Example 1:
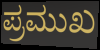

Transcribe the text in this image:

ಪ್ರಮುಖ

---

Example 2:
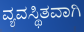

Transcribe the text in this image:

ವ್ಯವಸ್ಥಿತವಾಗಿ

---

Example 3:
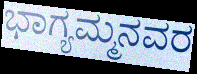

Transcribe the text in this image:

ಭಾಗ್ಯಮ್ಮನವರ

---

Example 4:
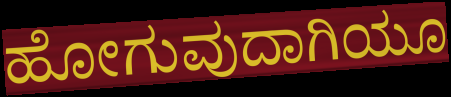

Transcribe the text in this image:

ಹೋಗುವುದಾಗಿಯೂ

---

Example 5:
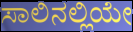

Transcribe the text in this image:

ಸಾಲಿನಲ್ಲಿಯೇ